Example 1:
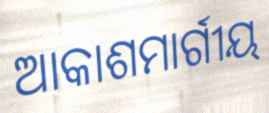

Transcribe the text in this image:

ଆକାଶମାର୍ଗୀୟ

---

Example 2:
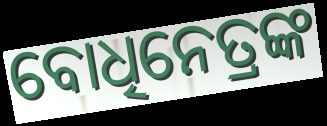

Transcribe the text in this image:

ବୋଧିନେତ୍ରଙ୍କ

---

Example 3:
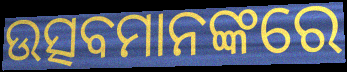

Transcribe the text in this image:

ଉତ୍ସବମାନଙ୍କରେ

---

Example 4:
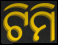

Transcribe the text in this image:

ଟିମି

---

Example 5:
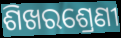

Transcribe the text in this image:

ଶିଖରଶ୍ରେଣୀ